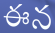
ఈన